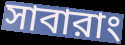
সাবারাং